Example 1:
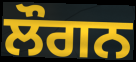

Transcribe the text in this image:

ਲੌਗਨ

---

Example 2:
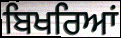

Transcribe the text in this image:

ਬਿਖਰਿਆਂ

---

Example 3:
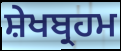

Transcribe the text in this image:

ਸ਼ੇਖਬ੍ਰਹਮ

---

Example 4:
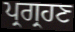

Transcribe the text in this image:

ਪ੍ਰਗ੍ਰਹਣ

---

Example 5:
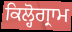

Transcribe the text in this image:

ਕਿਲ੍ਹੋਗ੍ਰਾਮ